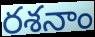
రశనాం